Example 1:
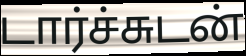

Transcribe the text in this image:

டார்ச்சுடன்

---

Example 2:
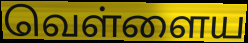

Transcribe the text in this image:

வெள்ளைய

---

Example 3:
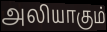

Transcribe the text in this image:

அலியாகும்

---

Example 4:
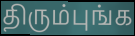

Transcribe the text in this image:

திரும்புங்க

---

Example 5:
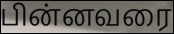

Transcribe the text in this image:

பின்னவரை